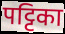
पट्टिका